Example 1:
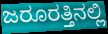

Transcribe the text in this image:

ಜರೂರತ್ತಿನಲ್ಲಿ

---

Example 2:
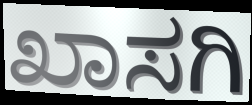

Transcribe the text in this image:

ಖಾಸಗಿ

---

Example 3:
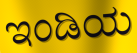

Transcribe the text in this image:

ಇಂಡಿಯ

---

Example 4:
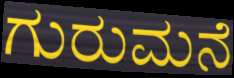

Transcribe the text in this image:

ಗುರುಮನೆ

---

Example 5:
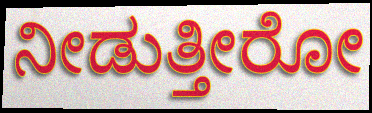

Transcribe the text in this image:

ನೀಡುತ್ತೀರೋ